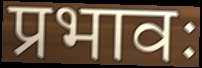
प्रभावः